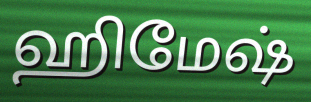
ஹிமேஷ்